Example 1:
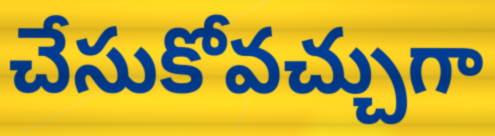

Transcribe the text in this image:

చేసుకోవచ్చుగా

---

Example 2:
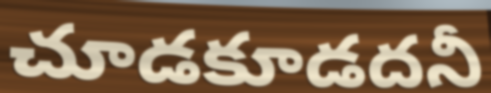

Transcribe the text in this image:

చూడకూడదనీ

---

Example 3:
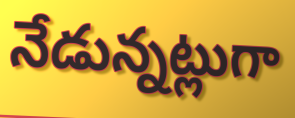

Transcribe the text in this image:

నేడున్నట్లుగా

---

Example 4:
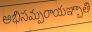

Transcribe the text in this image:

అభిసమ్పరాయఞ్చాతి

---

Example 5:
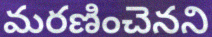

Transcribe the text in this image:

మరణించెనని